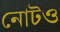
নোটও